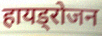
हायड्रोजन